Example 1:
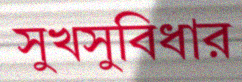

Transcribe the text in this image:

সুখসুবিধার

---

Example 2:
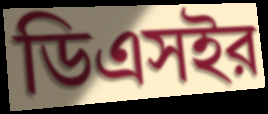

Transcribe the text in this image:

ডিএসইর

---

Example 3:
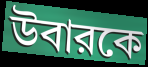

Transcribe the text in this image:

উবারকে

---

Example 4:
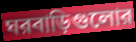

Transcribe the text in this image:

ঘরবাড়িগুলোর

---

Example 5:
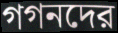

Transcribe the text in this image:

গগনদের